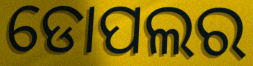
ଡୋପଲର